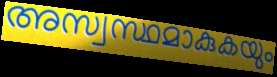
അസ്വസ്ഥമാകുകയും